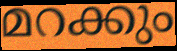
മറക്കും